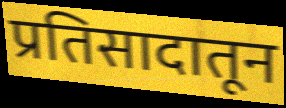
प्रतिसादातून